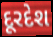
દૂરદેશ